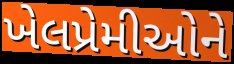
ખેલપ્રેમીઓને